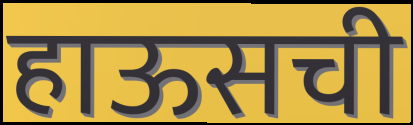
हाऊसची